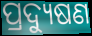
ପ୍ରଦ୍ଯୁଷଣ